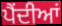
ਪੈਂਦੀਆਂ